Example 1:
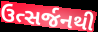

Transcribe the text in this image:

ઉત્સર્જનથી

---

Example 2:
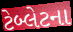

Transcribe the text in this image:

ટેબ્લેટના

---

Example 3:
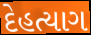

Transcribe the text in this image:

દેહત્યાગ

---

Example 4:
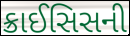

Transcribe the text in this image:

ક્રાઈસિસની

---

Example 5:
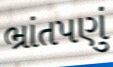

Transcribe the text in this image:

ભ્રાંતપણું